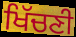
ਖਿੱਚਣੀ